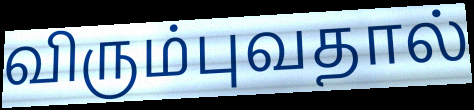
விரும்புவதால்